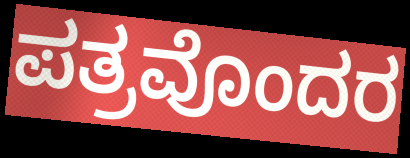
ಪತ್ರವೊಂದರ